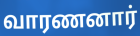
வாரணனார்